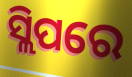
ସ୍ଲିପରେ